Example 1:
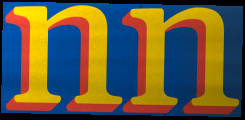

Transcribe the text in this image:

nn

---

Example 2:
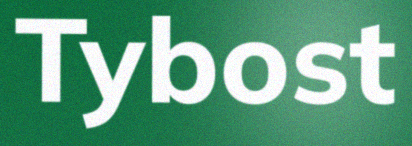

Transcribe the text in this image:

Tybost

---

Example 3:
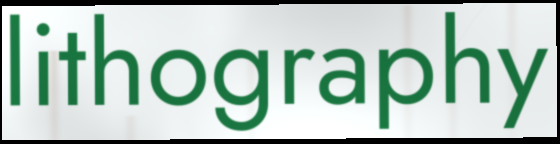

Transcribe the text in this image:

lithography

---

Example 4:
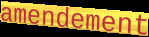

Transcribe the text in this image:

amendement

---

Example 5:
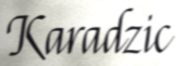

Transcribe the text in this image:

Karadzic